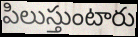
పిలుస్తుంటారు